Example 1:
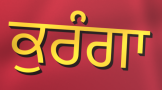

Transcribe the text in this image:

ਕੁਰੰਗਾ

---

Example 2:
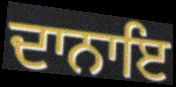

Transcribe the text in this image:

ਦਾਨਾਇ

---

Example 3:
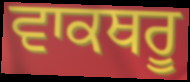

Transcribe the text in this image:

ਵਾਕਥਰੂ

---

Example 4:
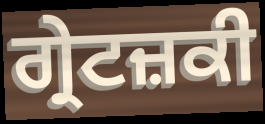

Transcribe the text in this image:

ਗ੍ਰੇਟਜ਼ਕੀ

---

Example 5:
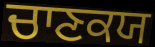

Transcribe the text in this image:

ਚਾਣਕਯ